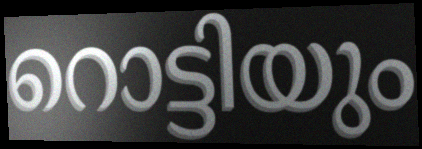
റൊട്ടിയും